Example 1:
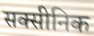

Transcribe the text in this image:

सक्सीनिक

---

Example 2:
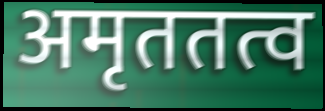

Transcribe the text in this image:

अमृततत्व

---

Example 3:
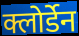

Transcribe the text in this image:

क्लोर्डेन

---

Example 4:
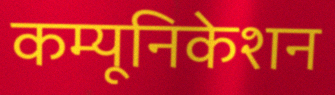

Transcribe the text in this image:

कम्यूनिकेशन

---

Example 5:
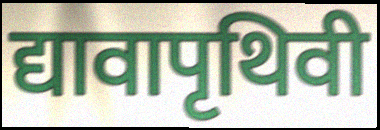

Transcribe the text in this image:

द्यावापृथिवी